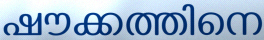
ഷൗക്കത്തിനെ